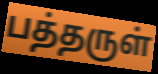
பத்தருள்